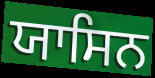
ਯਾਸਿਨ